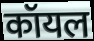
कॉयल